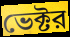
ভেক্টর